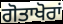
ਗੋਤਾਖੋਰਾਂ